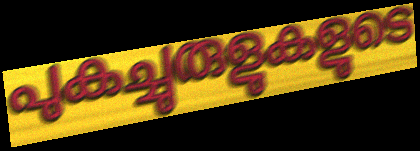
പുകച്ചുരുളുകളുടെ